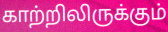
காற்றிலிருக்கும்